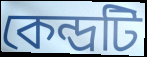
কেন্দ্রটি